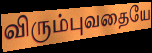
விரும்புவதையே